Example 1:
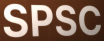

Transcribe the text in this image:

SPSC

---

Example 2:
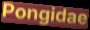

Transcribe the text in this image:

Pongidae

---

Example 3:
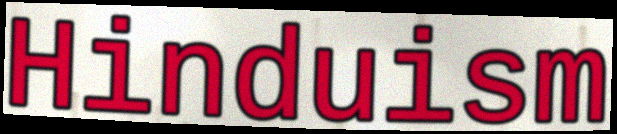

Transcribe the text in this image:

Hinduism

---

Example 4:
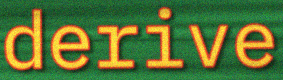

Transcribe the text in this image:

derive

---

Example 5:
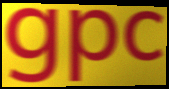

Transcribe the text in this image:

gpc